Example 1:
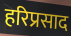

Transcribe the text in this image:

हरिप्रसाद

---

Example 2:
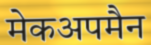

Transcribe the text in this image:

मेकअपमैन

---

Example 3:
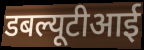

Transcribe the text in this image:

डबल्यूटीआई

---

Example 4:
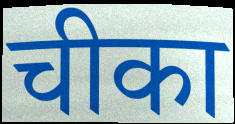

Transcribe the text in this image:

चीका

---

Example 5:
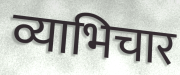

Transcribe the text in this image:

व्याभिचार